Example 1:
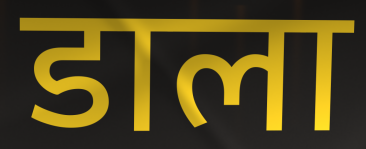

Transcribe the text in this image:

डाला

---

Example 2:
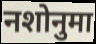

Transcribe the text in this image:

नशोनुमा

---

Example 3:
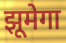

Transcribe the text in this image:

झूमेगा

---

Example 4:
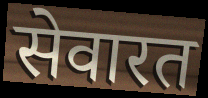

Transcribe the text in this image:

सेवारत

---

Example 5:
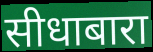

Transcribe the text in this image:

सीधाबारा